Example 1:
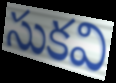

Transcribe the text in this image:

సుకవి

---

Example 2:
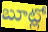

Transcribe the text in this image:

బూట్లో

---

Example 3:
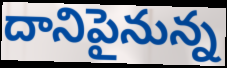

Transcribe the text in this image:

దానిపైనున్న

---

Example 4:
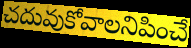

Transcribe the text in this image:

చదువుకోవాలనిపించే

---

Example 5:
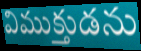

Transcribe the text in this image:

విముక్తుడను